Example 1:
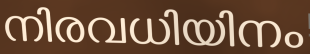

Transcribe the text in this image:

നിരവധിയിനം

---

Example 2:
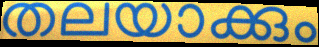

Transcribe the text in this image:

തലയാക്കും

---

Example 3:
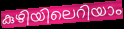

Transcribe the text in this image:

കുഴിയിലെറിയാം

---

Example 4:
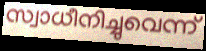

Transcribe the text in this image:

സ്വാധീനിച്ചുവെന്ന്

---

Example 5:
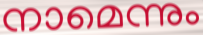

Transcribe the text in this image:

നാമെന്നും